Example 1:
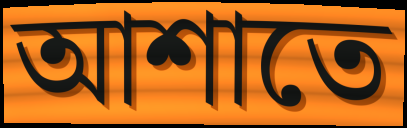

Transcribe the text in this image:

আশাতে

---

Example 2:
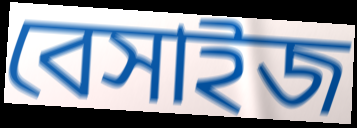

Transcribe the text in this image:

বেসাইজ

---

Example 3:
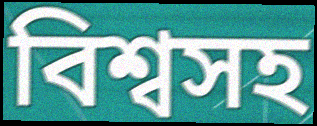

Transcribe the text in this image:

বিশ্বসহ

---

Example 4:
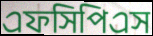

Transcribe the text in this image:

এফসিপিএস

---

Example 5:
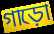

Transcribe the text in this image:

গাড়ো